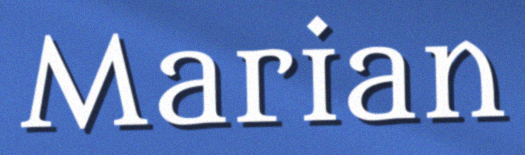
Marian